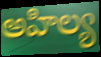
అహిల్య